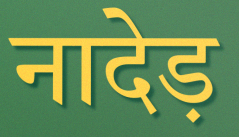
नादेड़